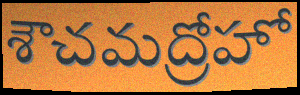
శౌచమద్రోహో